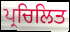
ਪ੍ਰਚਿਲਿਤ